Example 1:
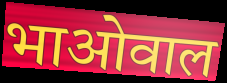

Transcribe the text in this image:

भाओवाल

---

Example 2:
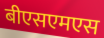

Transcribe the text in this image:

बीएसएमएस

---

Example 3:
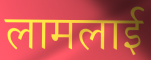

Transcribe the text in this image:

लामलाई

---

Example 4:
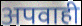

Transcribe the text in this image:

अपवाही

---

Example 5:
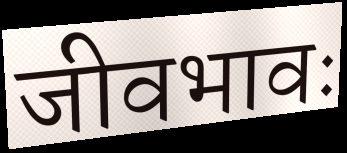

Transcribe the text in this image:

जीवभावः